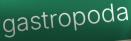
gastropoda